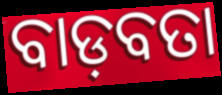
ବାଡ଼ବତା